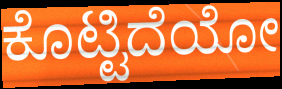
ಕೊಟ್ಟಿದೆಯೋ